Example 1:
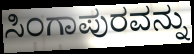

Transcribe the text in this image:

ಸಿಂಗಾಪುರವನ್ನು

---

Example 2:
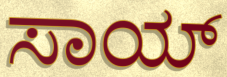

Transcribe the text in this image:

ಸಾಯ್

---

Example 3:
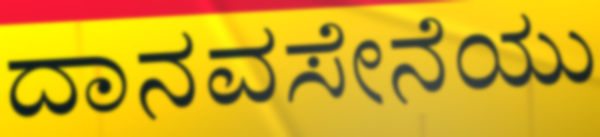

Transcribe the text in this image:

ದಾನವಸೇನೆಯು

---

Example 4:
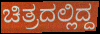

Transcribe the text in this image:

ಚಿತ್ರದಲ್ಲಿದ್ದ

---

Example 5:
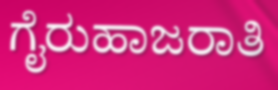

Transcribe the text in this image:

ಗೈರುಹಾಜರಾತಿ